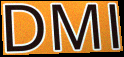
DMI